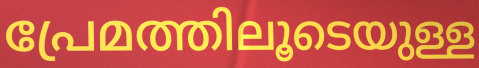
പ്രേമത്തിലൂടെയുള്ള